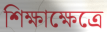
শিক্ষাক্ষেত্রে